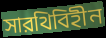
সারথিবিহীন